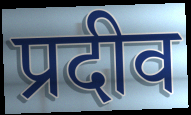
प्रदीव